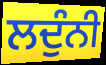
ਲਦੁੰਨੀ